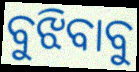
ବୁଝିବାବୁ